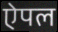
ऐपल